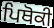
ਪਿਥੋਕੀ